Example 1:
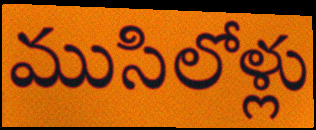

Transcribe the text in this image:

ముసిలోళ్లు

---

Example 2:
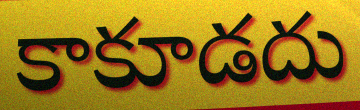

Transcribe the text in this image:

కాకూడదు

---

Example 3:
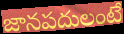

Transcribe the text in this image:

జానపదులంటే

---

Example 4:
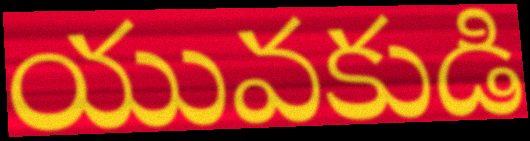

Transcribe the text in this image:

యువకుడి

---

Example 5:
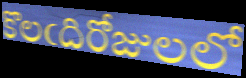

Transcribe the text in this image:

కొలఁదిరోజులలో